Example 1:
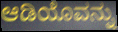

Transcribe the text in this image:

ಆಡಿಯೊವನ್ನು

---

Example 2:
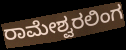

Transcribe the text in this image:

ರಾಮೇಶ್ವರಲಿಂಗ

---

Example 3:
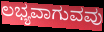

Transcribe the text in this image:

ಲಭ್ಯವಾಗುವವು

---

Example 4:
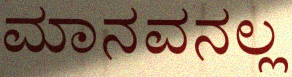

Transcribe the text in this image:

ಮಾನವನಲ್ಲ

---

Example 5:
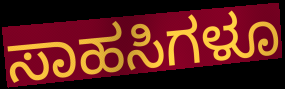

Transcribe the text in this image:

ಸಾಹಸಿಗಳೂ